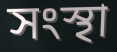
সংস্থা